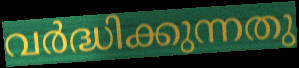
വർദ്ധിക്കുന്നതു